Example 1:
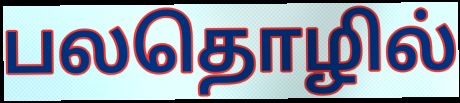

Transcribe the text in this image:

பலதொழில்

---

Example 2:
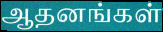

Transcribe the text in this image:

ஆதனங்கள்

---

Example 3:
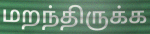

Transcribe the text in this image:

மறந்திருக்க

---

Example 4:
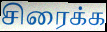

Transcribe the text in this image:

சிரைக்க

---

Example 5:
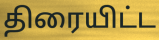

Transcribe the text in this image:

திரையிட்ட